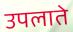
उपलाते